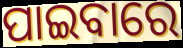
ପାଇବାରେ